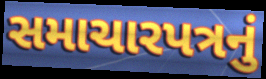
સમાચારપત્રનું